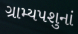
ગ્રામ્યપશુનાં